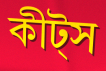
কীট্স